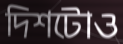
দিশটোও